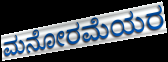
ಮನೋರಮೆಯರ